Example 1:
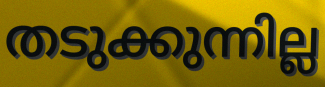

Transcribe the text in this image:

തടുക്കുന്നില്ല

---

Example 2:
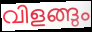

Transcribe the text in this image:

വിളങ്ങും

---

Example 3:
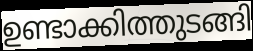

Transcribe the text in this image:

ഉണ്ടാക്കിത്തുടങ്ങി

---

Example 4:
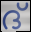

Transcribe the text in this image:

ദ്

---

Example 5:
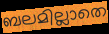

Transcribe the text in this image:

ബലമില്ലാതെ